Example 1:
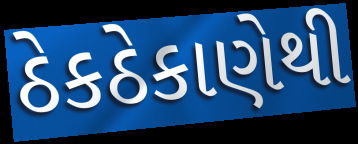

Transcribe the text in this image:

ઠેકઠેકાણેથી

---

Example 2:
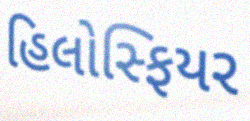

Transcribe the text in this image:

હિલોસ્ફિયર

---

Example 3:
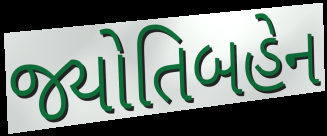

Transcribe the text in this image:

જ્યોતિબહેન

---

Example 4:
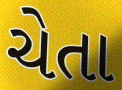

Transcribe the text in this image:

ચેતા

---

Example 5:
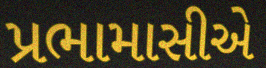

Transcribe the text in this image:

પ્રભામાસીએ